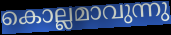
കൊല്ലമാവുന്നു